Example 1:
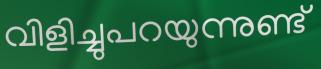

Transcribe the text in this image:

വിളിച്ചുപറയുന്നുണ്ട്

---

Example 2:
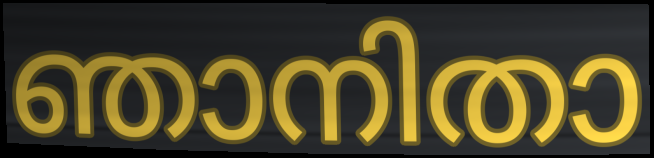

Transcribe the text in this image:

ഞാനിതാ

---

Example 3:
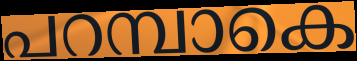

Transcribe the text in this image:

പറമ്പാകെ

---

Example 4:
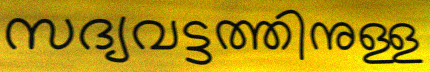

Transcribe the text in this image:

സദ്യവട്ടത്തിനുള്ള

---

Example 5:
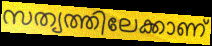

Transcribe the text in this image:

സത്യത്തിലേക്കാണ്